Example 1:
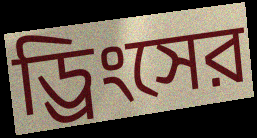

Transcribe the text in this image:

ড্রিংসের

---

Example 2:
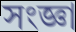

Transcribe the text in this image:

সংজ্ঞা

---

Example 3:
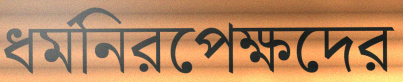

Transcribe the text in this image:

ধর্মনিরপেক্ষদের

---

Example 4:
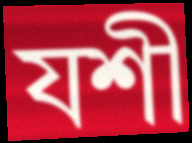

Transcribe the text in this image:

যশী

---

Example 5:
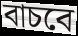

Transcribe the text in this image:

বাচবে